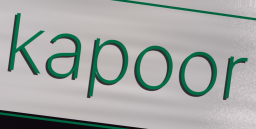
kapoor